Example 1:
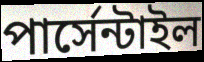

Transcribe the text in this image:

পার্সেন্টাইল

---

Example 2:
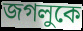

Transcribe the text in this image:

জগলুকে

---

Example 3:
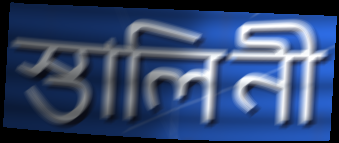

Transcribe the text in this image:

স্তালিনী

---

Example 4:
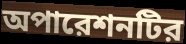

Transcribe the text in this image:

অপারেশনটির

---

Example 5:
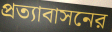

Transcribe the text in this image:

প্রত্যাবাসনের